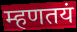
म्हणतयं